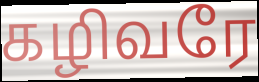
கழிவரே